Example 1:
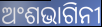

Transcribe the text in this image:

ଅଂଶଭାଗିନୀ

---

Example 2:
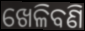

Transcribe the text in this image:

ଖେଳିବଣି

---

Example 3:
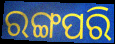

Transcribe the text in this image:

ରଙ୍ଗପରି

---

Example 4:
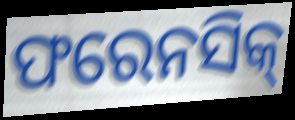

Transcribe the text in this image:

ଫରେନସିକ୍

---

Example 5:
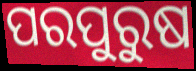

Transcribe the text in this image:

ପରପୁରୁଷ